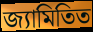
জ্যামিতিত